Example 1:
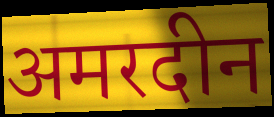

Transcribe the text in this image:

अमरदीन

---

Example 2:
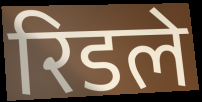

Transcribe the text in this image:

रिडले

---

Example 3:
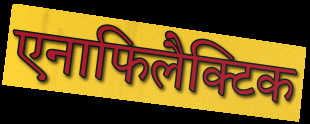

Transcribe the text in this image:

एनाफिलैक्टिक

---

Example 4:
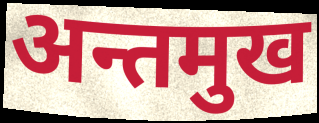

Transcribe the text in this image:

अन्तमुख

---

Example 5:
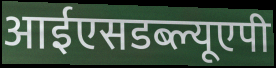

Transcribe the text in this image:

आईएसडब्ल्यूएपी